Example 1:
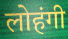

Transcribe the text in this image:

लोहंगी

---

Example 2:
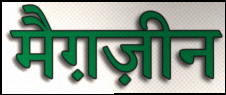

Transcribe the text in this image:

मैग़ज़ीन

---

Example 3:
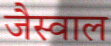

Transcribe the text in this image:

जैस्वाल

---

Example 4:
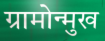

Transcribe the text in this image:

ग्रामोन्मुख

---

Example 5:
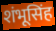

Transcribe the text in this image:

शंभूसिंह